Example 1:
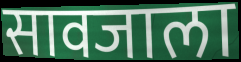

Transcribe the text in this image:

सावजाला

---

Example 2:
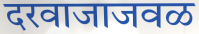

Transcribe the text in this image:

दरवाजाजवळ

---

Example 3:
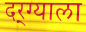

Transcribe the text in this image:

दर्ग्याला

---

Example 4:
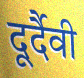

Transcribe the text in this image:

दूर्दैवी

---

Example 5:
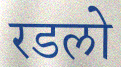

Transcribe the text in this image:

रडलो